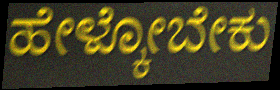
ಹೇಳ್ಕೋಬೇಕು